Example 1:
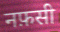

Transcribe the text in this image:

नफ़सी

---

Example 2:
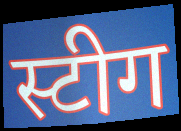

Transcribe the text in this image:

स्टीग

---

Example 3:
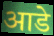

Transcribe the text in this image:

आडे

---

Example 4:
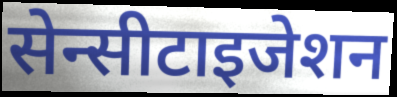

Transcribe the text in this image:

सेन्सीटाइजेशन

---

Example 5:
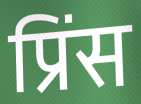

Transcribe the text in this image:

प्रिंस